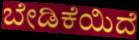
ಬೇಡಿಕೆಯಿದೆ